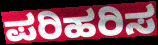
ಪರಿಹರಿಸ